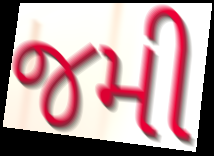
જમી